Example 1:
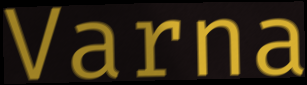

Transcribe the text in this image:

Varna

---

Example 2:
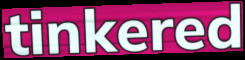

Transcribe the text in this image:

tinkered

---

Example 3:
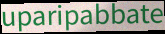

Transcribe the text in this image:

uparipabbate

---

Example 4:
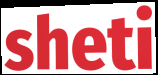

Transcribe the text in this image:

sheti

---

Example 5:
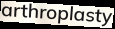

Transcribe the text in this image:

arthroplasty